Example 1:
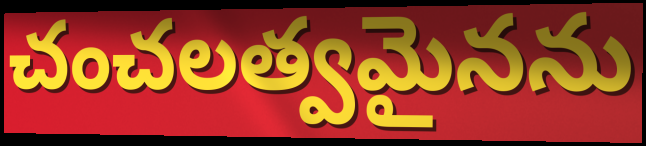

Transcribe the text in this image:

చంచలత్వమైనను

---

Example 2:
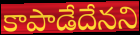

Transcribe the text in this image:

కాపాడేదేనని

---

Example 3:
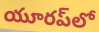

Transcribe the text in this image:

యూరప్‌లో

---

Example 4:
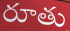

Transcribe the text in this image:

రూతు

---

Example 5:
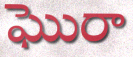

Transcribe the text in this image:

ఘొరా